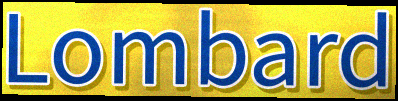
Lombard